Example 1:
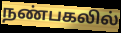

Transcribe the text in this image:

நண்பகலில்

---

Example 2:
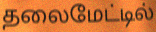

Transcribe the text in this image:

தலைமேட்டில்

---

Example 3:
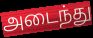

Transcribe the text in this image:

அடைந்து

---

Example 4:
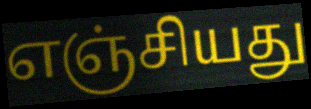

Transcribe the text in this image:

எஞ்சியது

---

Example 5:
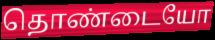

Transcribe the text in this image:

தொண்டையோ